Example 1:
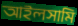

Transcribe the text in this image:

আইলসামি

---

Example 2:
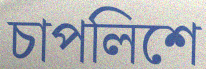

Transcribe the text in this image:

চাপলিশে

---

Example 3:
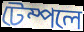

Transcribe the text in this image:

টেম্পলে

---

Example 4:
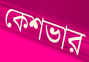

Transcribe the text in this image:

কেশভার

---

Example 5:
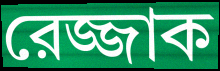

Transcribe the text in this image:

রেজ্জাক